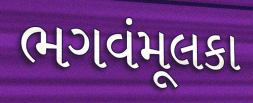
ભગવંમૂલકા